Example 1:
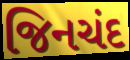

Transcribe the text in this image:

જિનચંદ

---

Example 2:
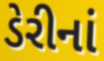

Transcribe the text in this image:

ડેરીનાં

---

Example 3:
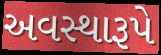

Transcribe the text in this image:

અવસ્થારૂપે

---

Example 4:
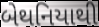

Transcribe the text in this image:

બેથનિયાથી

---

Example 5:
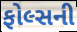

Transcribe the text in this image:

ફોલ્સની